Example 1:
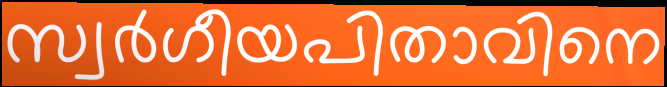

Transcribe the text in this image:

സ്വർഗീയപിതാവിനെ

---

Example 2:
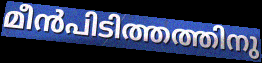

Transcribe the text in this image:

മീൻപിടിത്തത്തിനു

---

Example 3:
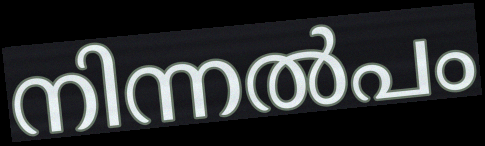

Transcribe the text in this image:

നിന്നൽപം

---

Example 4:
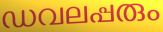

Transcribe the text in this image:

ഡവലപ്പരും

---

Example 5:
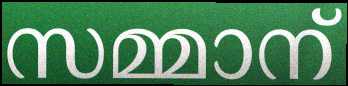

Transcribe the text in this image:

സമ്മാന്